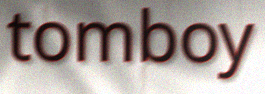
tomboy